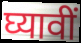
घ्यावीं